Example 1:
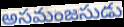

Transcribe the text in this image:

అసమంజసుడు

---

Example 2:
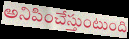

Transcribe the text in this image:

అనిపించేస్తుంటుంది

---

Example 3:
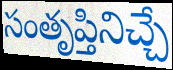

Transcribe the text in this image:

సంతృప్తినిచ్చే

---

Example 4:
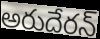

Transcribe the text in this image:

అరుదేరన్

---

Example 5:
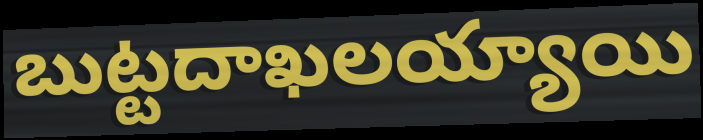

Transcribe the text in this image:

బుట్టదాఖలయ్యాయి